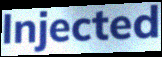
Injected